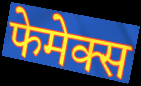
फेमेक्स